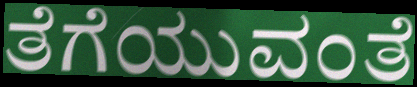
ತೆಗೆಯುವಂತೆ